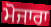
ਮੋਜਾਰਾ